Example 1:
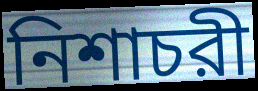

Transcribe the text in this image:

নিশাচরী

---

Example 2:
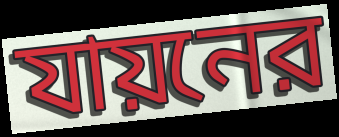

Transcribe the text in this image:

যায়নের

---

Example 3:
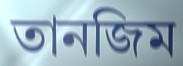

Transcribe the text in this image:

তানজিম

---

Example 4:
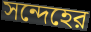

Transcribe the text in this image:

সন্দেহের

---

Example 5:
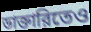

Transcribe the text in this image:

ডাক্তারিতেও